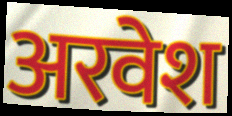
अरवेश